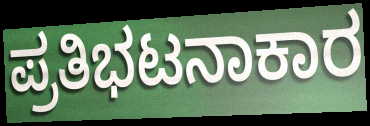
ಪ್ರತಿಭಟನಾಕಾರ